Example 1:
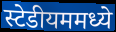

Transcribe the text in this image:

स्टेडीयममध्ये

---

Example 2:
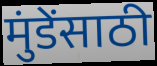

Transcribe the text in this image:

मुंडेंसाठी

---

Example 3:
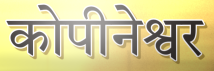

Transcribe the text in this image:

कोपीनेश्वर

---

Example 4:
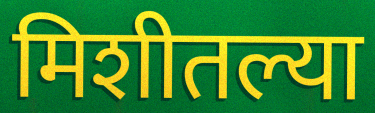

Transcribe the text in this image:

मिशीतल्या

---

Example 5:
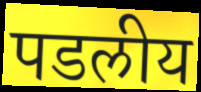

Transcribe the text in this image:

पडलीय